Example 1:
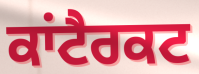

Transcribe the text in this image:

ਕਾਂਟੈਰਕਟ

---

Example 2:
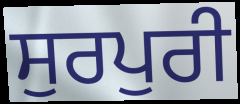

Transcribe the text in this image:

ਸੁਰਪੁਰੀ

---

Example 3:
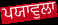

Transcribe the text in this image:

ਪਯਾਵੁਲਾ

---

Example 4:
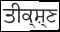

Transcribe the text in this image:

ਤੀਕ੍ਸ਼੍ਣ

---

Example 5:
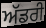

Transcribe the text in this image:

ਅੱਡਰੀ